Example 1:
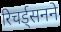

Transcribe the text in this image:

रिचर्ड्सनने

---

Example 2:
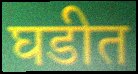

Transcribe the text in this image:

घडीत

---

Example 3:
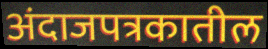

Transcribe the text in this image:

अंदाजपत्रकातील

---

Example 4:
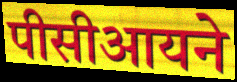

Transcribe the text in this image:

पीसीआयने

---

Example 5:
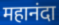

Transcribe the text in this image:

महानंदा